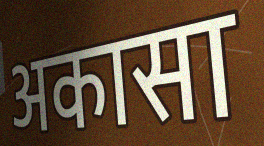
अकासा